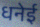
धनेई